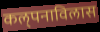
कल्पनाविलास